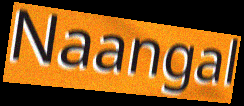
Naangal